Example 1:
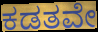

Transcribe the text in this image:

ಕಡತವೇ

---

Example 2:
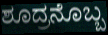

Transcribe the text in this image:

ಶೂದ್ರನೊಬ್ಬ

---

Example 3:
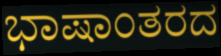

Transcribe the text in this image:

ಭಾಷಾಂತರದ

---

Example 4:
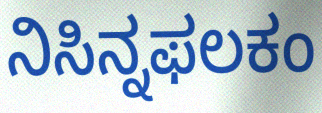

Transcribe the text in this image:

ನಿಸಿನ್ನಫಲಕಂ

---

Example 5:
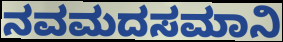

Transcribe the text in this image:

ನವಮದಸಮಾನಿ